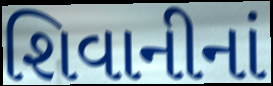
શિવાનીનાં